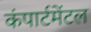
कंपार्टमेंटल